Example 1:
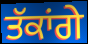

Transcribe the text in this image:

ਤੱਕਾਂਗੇ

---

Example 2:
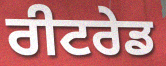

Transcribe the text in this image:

ਰੀਟਰੇਡ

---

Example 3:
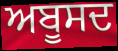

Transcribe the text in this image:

ਅਬੂਸਦ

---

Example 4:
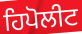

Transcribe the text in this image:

ਹਿਪੋਲੀਟ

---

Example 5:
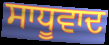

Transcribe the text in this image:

ਸਾਧੂਵਾਦ